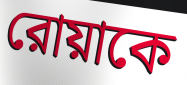
রোয়াকে